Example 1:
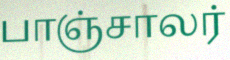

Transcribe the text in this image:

பாஞ்சாலர்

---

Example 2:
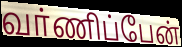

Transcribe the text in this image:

வர்ணிப்பேன்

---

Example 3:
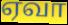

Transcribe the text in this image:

ஏவா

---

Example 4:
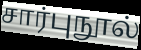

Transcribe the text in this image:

சார்புநூல்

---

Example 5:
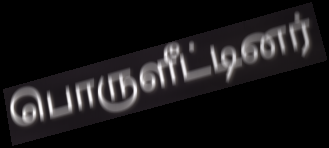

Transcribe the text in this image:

பொருளீட்டினர்